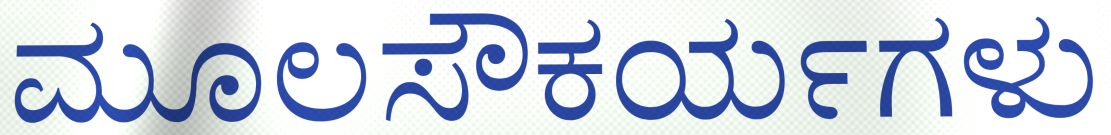
ಮೂಲಸೌಕರ್ಯಗಳು